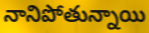
నానిపోతున్నాయి